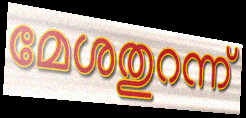
മേശതുറന്ന്